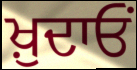
ਖ਼ੁਦਾਓਂ